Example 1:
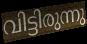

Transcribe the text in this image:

വിട്ടിരുന്നു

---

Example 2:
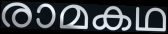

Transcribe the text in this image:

രാമകഥ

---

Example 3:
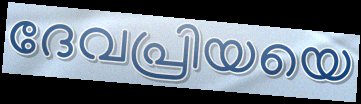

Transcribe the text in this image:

ദേവപ്രിയയെ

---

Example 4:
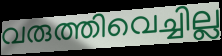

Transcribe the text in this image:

വരുത്തിവെച്ചില്ല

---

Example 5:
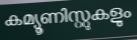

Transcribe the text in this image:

കമ്യൂണിസ്റ്റുകളും